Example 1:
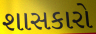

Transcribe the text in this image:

શાસકારો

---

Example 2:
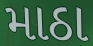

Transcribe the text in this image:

માઠા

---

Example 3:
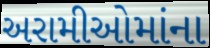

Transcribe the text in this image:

અરામીઓમાંના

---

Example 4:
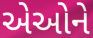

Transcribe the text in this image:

એઓને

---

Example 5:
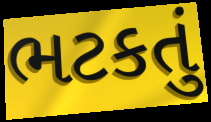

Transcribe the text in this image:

ભટકતું